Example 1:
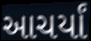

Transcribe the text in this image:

આચર્યાં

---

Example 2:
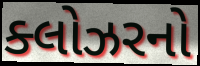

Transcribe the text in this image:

ક્લોઝરનો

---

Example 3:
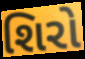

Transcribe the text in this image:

શિરો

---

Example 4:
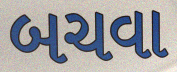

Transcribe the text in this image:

બચવા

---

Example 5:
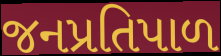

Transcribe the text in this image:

જનપ્રતિપાળ